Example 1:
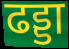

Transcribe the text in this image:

ढड्डा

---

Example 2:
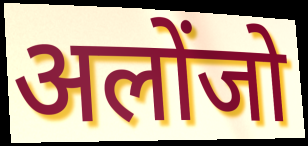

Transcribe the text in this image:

अलोंजो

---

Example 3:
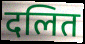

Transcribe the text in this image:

दलित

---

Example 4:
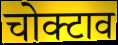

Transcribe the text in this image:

चोक्टाव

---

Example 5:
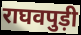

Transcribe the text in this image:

राघवपुड़ी